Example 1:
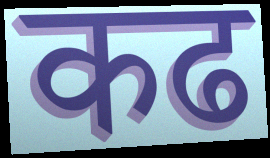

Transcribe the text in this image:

कढ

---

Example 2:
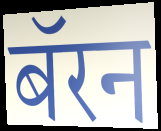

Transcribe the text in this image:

बॅरन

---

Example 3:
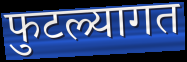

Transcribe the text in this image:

फुटल्यागत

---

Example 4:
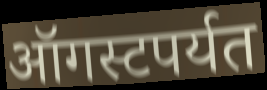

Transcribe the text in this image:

ऑगस्टपर्यत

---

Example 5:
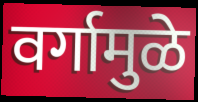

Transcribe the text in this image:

वर्गामुळे